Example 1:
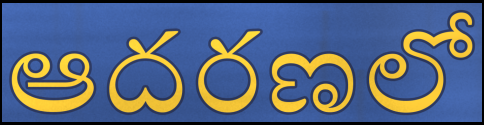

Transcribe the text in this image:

ఆదరణలో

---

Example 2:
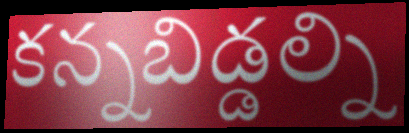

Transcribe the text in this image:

కన్నబిడ్డల్ని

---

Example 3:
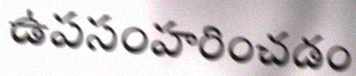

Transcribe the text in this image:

ఉపసంహరించడం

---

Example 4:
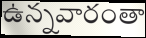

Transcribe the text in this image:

ఉన్నవారంతా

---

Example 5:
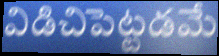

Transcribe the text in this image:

విడిచిపెట్టడమే